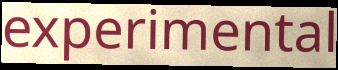
experimental